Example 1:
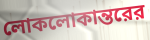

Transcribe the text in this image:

লোকলোকান্তরের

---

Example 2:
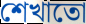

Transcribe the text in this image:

শেখাতো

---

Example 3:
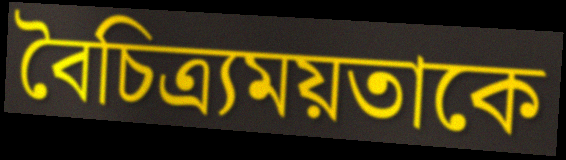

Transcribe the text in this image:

বৈচিত্র্যময়তাকে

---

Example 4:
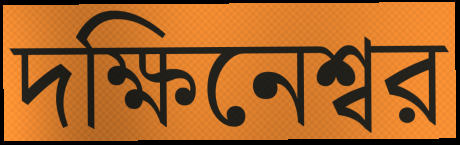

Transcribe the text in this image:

দক্ষিনেশ্বর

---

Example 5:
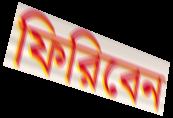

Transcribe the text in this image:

ফিরিবেন